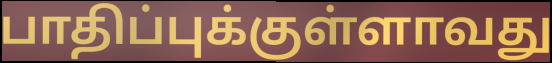
பாதிப்புக்குள்ளாவது